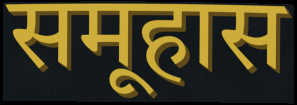
समूहास